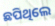
ଛପିଥିଲେ